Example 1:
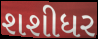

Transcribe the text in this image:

શશીધર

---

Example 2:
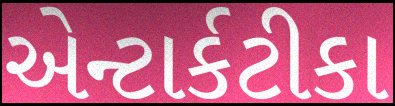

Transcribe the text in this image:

એન્ટાર્કટીકા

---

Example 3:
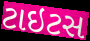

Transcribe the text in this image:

ટાઇટસ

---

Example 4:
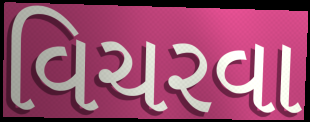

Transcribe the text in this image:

વિચરવા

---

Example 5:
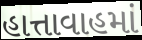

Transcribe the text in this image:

હાત્તાવાહમાં